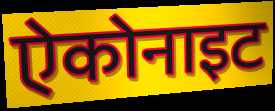
ऐकोनाइट